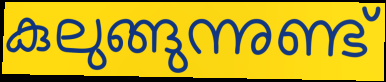
കുലുങ്ങുന്നുണ്ട്